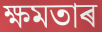
ক্ষমতাৰ